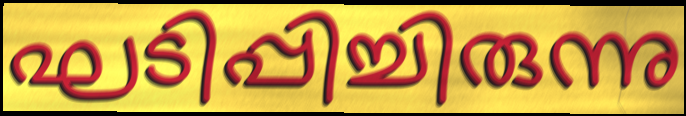
ഘടിപ്പിച്ചിരുന്നു